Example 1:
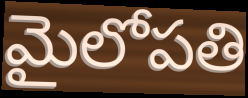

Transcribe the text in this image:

మైలోపతి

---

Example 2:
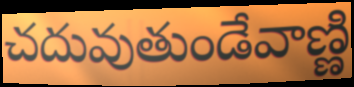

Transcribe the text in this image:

చదువుతుండేవాణ్ణి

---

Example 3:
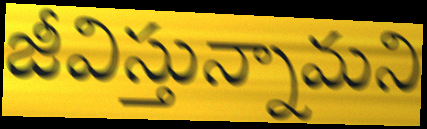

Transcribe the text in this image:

జీవిస్తున్నామని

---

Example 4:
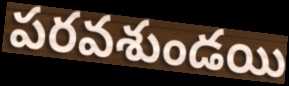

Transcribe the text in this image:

పరవశుండయి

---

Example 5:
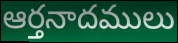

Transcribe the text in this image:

ఆర్తనాదములు